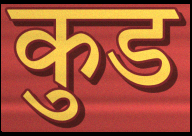
कुड